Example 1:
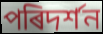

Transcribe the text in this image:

পৰিদৰ্শন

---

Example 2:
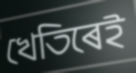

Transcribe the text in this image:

খেতিৰেই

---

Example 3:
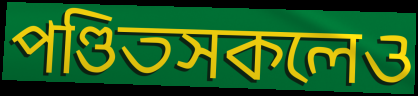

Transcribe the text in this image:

পণ্ডিতসকলেও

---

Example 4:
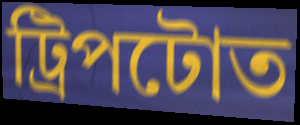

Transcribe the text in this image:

ট্ৰিপটোত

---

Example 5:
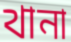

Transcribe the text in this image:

থানা